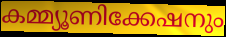
കമ്മ്യൂണിക്കേഷനും